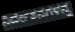
ನಿರ್ದೇಶನಗಳನ್ನ